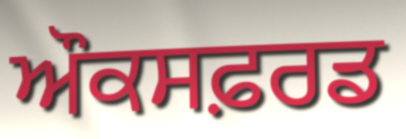
ਔਕਸਫ਼ਰਡ